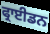
ਫ੍ਰਾਈਡਨ